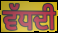
ਵੱਧਦੀ